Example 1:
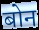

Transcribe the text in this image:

बोन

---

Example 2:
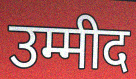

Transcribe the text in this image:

उम्मीद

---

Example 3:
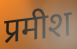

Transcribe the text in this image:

प्रमीश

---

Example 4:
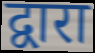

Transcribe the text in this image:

द्वारा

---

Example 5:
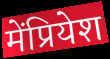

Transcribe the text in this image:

मेंप्रियेश